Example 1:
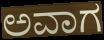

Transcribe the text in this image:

ಅವಾಗ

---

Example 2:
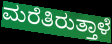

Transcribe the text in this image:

ಮರೆತಿರುತ್ತಾಳೆ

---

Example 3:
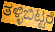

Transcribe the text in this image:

ತಳ್ಳಿಬಿಟ್ಟರೆ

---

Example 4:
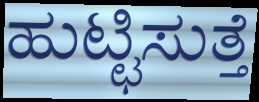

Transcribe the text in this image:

ಹುಟ್ಟಿಸುತ್ತೆ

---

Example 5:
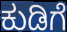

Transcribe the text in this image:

ಕುಡಿಗೆ